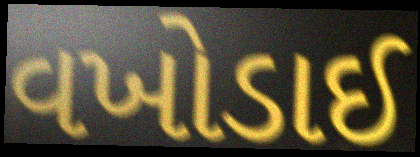
વખોડાઈ